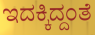
ಇದಕ್ಕಿದ್ದಂತೆ